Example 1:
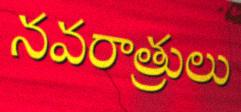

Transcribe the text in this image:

నవరాత్రులు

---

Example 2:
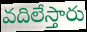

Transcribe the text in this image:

వదిలేస్తారు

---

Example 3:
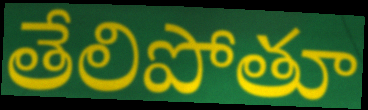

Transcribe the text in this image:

తేలిపోతూ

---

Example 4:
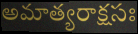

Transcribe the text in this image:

అమాత్యరాక్షసః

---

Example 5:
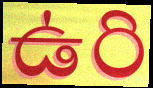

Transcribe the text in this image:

ఉరి